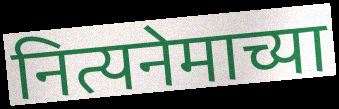
नित्यनेमाच्या